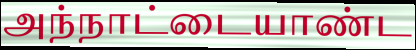
அந்நாட்டையாண்ட